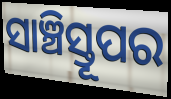
ସାଞ୍ଚିସ୍ତୂପର